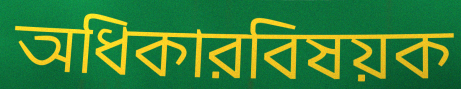
অধিকারবিষয়ক